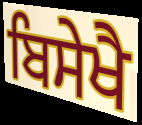
ਬਿਸੇਖੈ